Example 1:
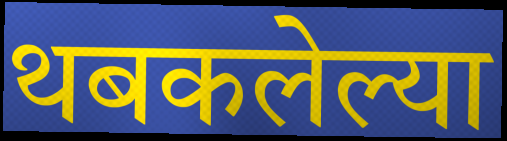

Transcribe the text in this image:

थबकलेल्या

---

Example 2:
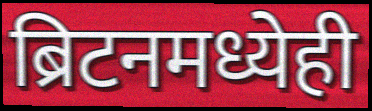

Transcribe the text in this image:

ब्रिटनमध्येही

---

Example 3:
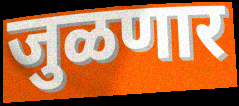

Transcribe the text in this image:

जुळणार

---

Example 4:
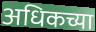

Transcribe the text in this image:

अधिकच्या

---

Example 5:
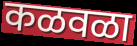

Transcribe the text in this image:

कळवळा